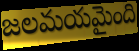
జలమయమైంది